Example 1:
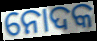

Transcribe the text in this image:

ନୋଦକ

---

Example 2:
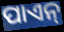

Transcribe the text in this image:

ପାଏନ୍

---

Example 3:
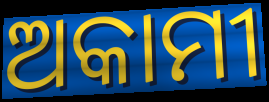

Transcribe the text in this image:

ଅକାମୀ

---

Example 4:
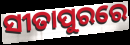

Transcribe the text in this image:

ସୀତାପୁରରେ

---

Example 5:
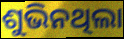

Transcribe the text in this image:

ଶୁଭିନଥିଲା